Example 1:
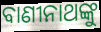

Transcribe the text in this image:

ବାଣୀନାଥଙ୍କୁ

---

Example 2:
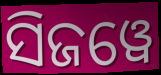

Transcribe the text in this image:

ସିଜୱେ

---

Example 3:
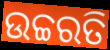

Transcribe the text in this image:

ଉଚ୍ଚରତି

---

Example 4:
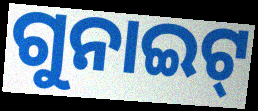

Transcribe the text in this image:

ଗୁନାଇଟ୍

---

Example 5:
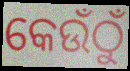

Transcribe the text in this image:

କେଉଁଠୁଁ